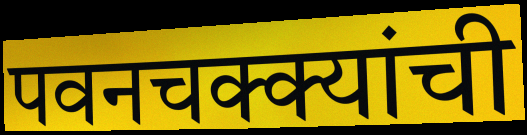
पवनचक्क्यांची